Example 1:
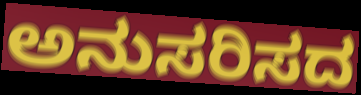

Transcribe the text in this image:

ಅನುಸರಿಸದ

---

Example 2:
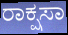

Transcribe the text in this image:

ರಾಕ್ಷಸಾ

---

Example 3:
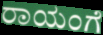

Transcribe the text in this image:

ರಾಯಂಗೆ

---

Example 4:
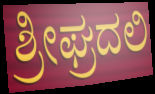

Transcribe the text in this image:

ಶ್ರೀಘ್ರದಲಿ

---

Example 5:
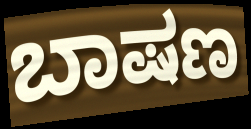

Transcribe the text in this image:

ಬಾಷಣ